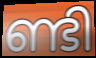
ണ്ടി